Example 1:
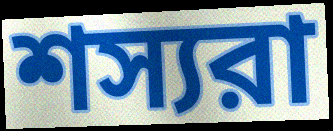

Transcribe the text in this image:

শস্যরা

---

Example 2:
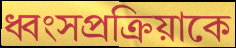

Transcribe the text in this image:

ধ্বংসপ্রক্রিয়াকে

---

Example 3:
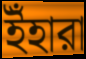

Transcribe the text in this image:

ইঁহারা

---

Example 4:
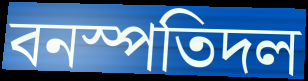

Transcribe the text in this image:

বনস্পতিদল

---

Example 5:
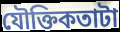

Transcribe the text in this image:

যৌক্তিকতাটা